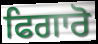
ਫਿਗਾਰੋ